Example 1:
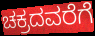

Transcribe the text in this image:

ಚಕ್ರದವರೆಗೆ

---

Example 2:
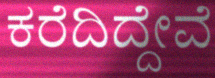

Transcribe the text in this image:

ಕರೆದಿದ್ದೇವೆ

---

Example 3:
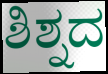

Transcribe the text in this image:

ಶಿಶ್ನದ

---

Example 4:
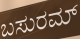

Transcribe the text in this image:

ಬಸುರಮ್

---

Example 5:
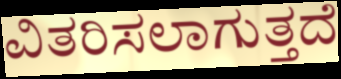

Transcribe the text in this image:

ವಿತರಿಸಲಾಗುತ್ತದೆ